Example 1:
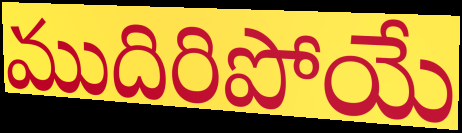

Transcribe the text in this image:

ముదిరిపోయే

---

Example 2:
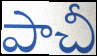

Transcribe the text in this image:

పాచీ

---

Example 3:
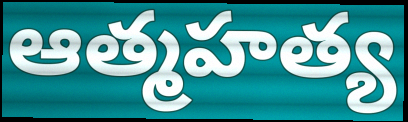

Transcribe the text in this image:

ఆత్మహత్య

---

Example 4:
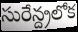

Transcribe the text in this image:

సురేన్ద్రలోక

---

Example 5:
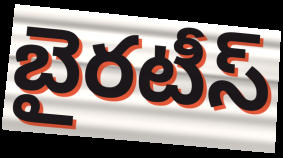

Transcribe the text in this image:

బైరటీస్